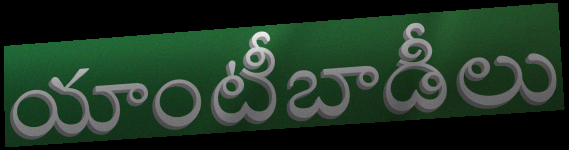
యాంటీబాడీలు